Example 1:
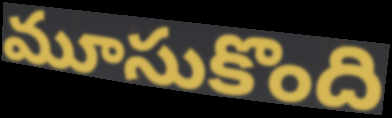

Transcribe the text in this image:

మూసుకొంది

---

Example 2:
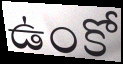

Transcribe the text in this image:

ఉంకో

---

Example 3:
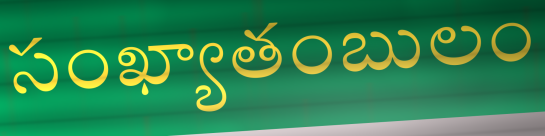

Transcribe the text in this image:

సంఖ్యాతంబులం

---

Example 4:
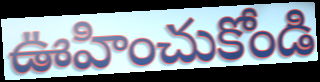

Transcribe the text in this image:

ఊహించుకోండి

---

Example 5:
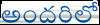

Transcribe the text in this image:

అందరిలో